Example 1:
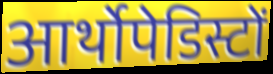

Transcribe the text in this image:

आर्थोपेडिस्टों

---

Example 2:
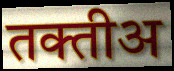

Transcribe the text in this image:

तक्तीअ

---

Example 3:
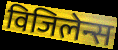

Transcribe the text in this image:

विजिलेन्स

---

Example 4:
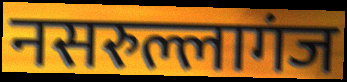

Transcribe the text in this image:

नसरुल्लागंज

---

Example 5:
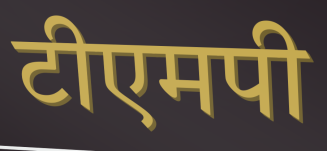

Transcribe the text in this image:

टीएमपी